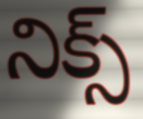
నిక్స్